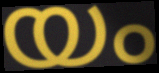
യം